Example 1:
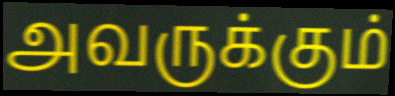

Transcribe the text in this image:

அவருக்கும்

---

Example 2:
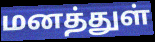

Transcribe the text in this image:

மனத்துள்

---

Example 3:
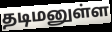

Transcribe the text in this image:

தடிமனுள்ள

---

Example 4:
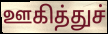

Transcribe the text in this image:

ஊகித்துச்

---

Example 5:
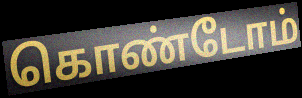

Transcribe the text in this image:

கொண்டோம்